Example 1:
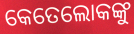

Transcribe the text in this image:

କେତେଲୋକଙ୍କୁ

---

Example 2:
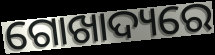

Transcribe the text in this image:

ଗୋଖାଦ୍ୟରେ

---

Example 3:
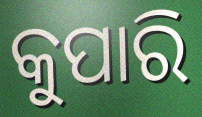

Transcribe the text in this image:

କୁପାରି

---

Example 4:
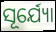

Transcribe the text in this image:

ସୂର୍ଯ୍ୟୋ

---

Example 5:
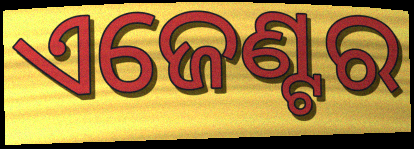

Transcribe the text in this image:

ଏଜେଣ୍ଟର